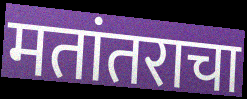
मतांतराचा